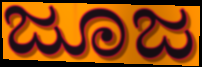
ಜೂಜ